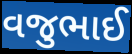
વજુભાઈ